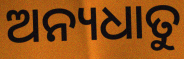
ଅନ୍ୟଧାତୁ